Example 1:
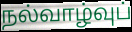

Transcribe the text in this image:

நல்வாழ்வுப்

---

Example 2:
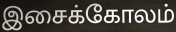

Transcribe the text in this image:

இசைக்கோலம்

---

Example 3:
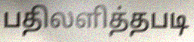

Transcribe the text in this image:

பதிலளித்தபடி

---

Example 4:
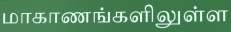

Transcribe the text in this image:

மாகாணங்களிலுள்ள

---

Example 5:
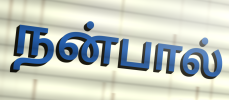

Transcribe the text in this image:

நன்பால்